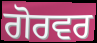
ਗੋਰਵਰ